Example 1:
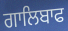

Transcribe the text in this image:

ਗਾਲਿਬਾਫ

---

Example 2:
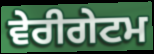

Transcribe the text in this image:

ਵੇਰੀਗੇਟਮ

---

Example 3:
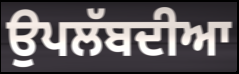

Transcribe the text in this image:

ਉਪਲੱਬਦੀਆ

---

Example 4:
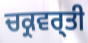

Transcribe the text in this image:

ਚਕ੍ਰਵਰ੍ਤੀ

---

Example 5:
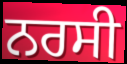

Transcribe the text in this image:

ਨਰਸੀ